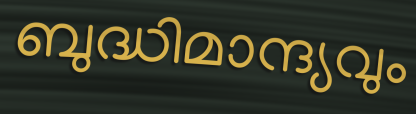
ബുദ്ധിമാന്ദ്യവും